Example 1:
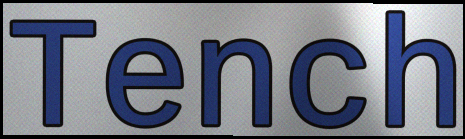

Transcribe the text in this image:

Tench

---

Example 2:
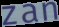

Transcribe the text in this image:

zan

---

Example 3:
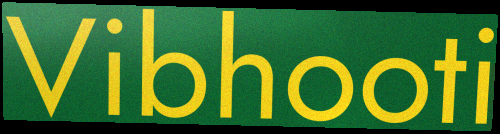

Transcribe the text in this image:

Vibhooti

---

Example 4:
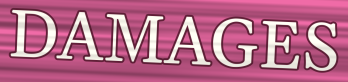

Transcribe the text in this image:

DAMAGES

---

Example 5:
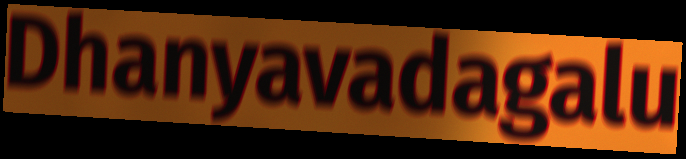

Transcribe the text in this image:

Dhanyavadagalu